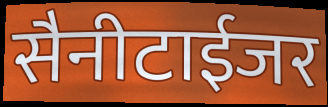
सैनीटाईजर